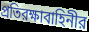
প্রতিরক্ষাবাহিনীর